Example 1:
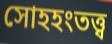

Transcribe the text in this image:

সোহহংতত্ত্ব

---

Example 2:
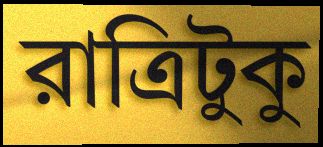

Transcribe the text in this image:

রাত্রিটুকু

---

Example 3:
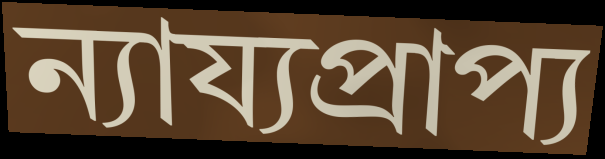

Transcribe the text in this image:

ন্যায্যপ্রাপ্য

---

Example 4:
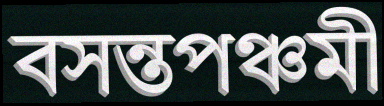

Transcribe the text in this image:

বসন্তপঞ্চমী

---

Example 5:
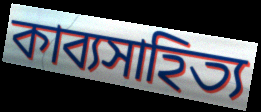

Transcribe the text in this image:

কাব্যসাহিত্য